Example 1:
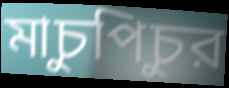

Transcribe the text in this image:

মাচুপিচুর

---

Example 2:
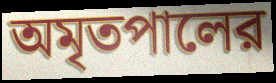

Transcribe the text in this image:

অমৃতপালের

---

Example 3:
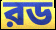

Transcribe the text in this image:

রড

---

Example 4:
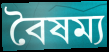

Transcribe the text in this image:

বৈষম্য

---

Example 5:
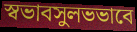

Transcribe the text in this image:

স্বভাবসুলভভাবে